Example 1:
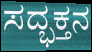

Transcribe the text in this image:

ಸದ್ಭಕ್ತನ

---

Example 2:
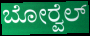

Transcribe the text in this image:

ಬೋರ್‍ವೆಲ್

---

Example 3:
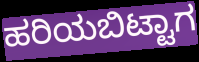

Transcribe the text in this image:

ಹರಿಯಬಿಟ್ಟಾಗ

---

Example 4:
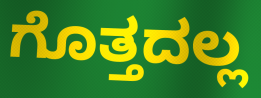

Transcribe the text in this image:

ಗೊತ್ತದಲ್ಲ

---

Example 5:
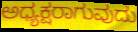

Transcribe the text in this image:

ಅಧ್ಯಕ್ಷರಾಗುವುದು